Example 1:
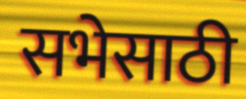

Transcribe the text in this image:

सभेसाठी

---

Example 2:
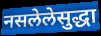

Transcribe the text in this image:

नसलेलेसुद्धा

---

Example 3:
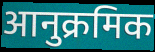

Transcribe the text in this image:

आनुक्रमिक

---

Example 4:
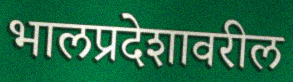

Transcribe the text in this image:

भालप्रदेशावरील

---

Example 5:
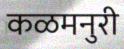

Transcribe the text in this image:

कळमनुरी